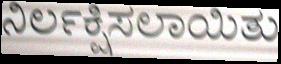
ನಿರ್ಲಕ್ಷಿಸಲಾಯಿತು